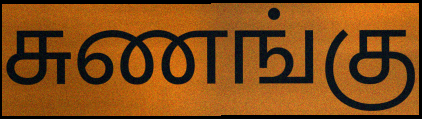
சுணங்கு